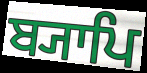
ਬ੍ਯਾਪਿ